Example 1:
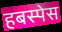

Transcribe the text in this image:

हबस्पेस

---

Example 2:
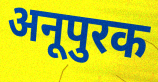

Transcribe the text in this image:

अनूपुरक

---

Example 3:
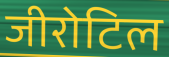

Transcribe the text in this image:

जीरोटिल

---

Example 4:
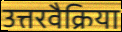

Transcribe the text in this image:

उत्तरवैक्रिया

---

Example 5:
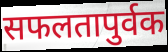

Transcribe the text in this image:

सफलतापुर्वक